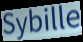
Sybille